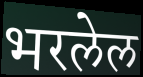
भरलेल